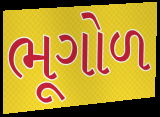
ભૂગોળ